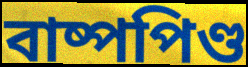
বাষ্পপিণ্ড